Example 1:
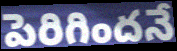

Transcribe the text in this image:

పెరిగిందనే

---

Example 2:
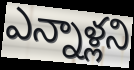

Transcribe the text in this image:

ఎన్నాళ్లని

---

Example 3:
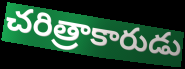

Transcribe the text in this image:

చరిత్రాకారుడు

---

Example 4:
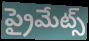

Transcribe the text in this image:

ప్రైమేట్స్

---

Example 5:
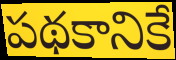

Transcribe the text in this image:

పథకానికే